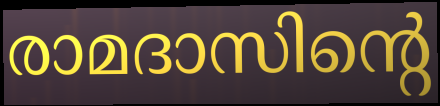
രാമദാസിന്റെ